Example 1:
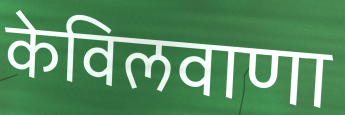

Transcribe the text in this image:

केविलवाणा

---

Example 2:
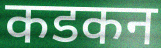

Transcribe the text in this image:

कडकन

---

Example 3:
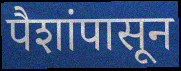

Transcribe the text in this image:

पैशांपासून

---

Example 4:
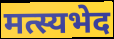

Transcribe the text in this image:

मत्स्यभेद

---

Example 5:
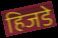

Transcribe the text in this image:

हिजडे